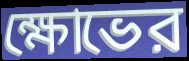
ক্ষোভের